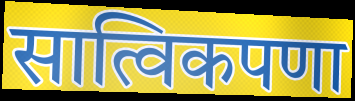
सात्विकपणा